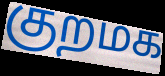
குறமக